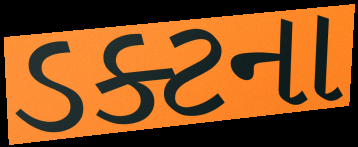
ડક્ટના